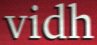
vidh